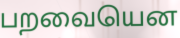
பறவையென